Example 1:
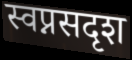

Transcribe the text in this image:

स्वप्नसदृश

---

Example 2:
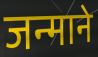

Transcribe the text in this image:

जन्माने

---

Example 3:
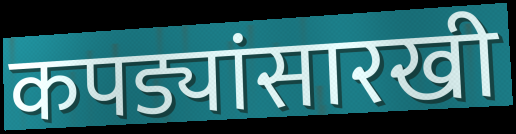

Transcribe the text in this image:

कपड्यांसारखी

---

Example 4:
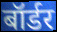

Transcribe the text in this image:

बॉर्डर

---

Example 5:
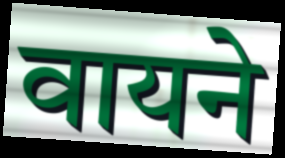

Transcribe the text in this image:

वायने